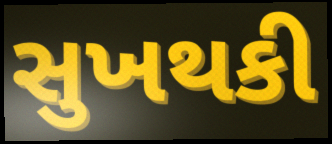
સુખથકી